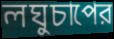
লঘুচাপের